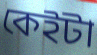
কেইটা